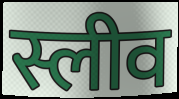
स्लीव